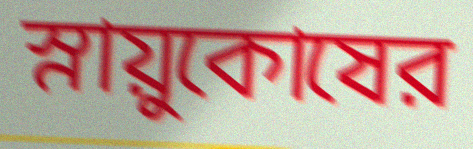
স্নায়ুকোষের